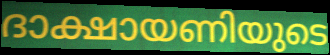
ദാക്ഷായണിയുടെ